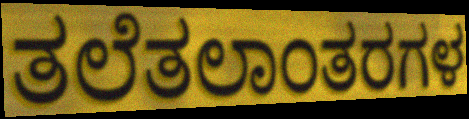
ತಲೆತಲಾಂತರಗಳ